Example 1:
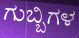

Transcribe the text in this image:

ಗುಬ್ಬಿಗಳ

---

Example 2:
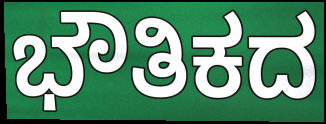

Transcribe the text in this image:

ಭೌತಿಕದ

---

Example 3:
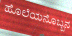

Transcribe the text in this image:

ಹೊಲೆಯನೊಬ್ಬನ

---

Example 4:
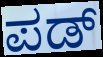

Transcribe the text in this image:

ಪಡ್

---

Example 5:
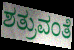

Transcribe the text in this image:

ಶತ್ರುವಂತೆ